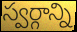
స్వర్గాన్ని